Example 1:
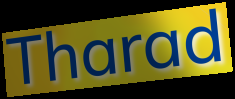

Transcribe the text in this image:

Tharad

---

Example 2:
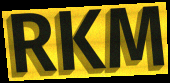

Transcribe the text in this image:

RKM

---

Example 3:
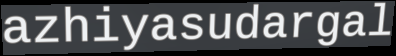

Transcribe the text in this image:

azhiyasudargal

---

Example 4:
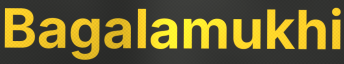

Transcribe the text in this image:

Bagalamukhi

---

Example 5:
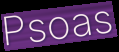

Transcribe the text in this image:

Psoas